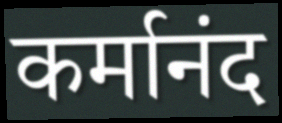
कर्मानंद